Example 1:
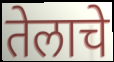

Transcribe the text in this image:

तेलाचे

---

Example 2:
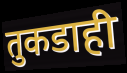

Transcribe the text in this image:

तुकडाही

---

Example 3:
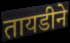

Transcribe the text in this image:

तायडीने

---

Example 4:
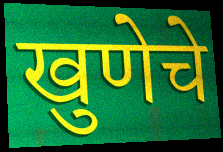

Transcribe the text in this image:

खुणेचे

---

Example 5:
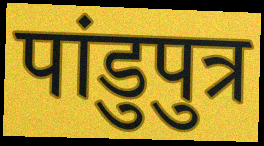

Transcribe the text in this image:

पांडुपुत्र